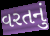
વરતનું